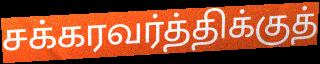
சக்கரவர்த்திக்குத்